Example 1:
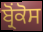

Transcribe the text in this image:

ਬ੍ਰੋਂਕੋਸ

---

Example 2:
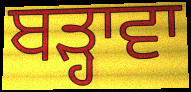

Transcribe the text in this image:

ਬੜ੍ਹਾਵਾ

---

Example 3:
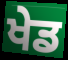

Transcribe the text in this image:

ਖੇਡ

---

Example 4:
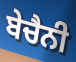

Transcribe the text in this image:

ਬੇਚੈਨੀ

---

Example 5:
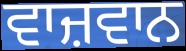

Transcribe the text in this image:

ਵਾਜ਼ਵਾਨ